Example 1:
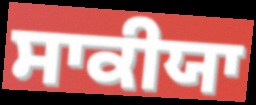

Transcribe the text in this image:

ਸਾਕੀਯਾ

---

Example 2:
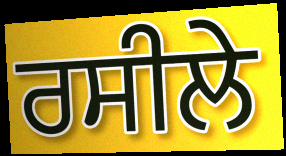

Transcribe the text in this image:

ਰਸੀਲੇ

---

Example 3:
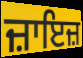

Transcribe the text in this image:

ਜ਼ਾਇਜ਼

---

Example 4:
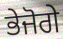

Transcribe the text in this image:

ਭੇਜੋਗੇ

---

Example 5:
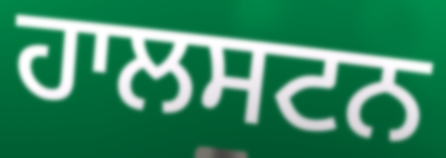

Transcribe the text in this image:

ਹਾਲਸਟਨ